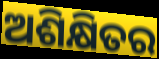
ଅଶିକ୍ଷିତର